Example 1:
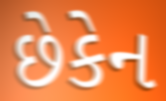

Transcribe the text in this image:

છેકેન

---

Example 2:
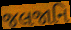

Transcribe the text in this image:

જલજાનિ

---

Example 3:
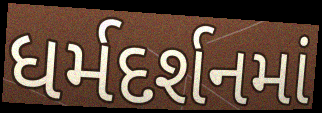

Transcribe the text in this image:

ધર્મદર્શનમાં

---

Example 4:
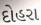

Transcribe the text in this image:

દોહરા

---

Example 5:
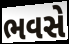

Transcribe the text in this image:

ભવસે